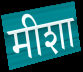
मीशा